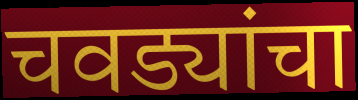
चवड्यांचा